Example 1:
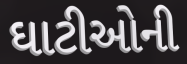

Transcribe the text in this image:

ઘાટીઓની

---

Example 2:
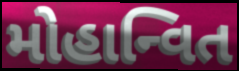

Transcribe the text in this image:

મોહાન્વિત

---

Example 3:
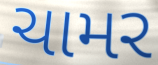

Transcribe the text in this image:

ચામર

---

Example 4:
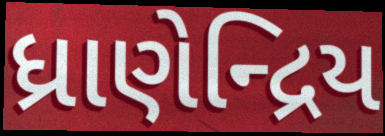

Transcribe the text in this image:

ધ્રાણેન્દ્રિય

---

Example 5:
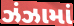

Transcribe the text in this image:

ઝંઝામાં